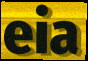
eia